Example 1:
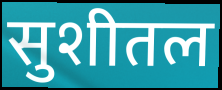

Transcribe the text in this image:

सुशीतल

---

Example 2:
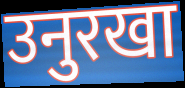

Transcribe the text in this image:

उनुरखा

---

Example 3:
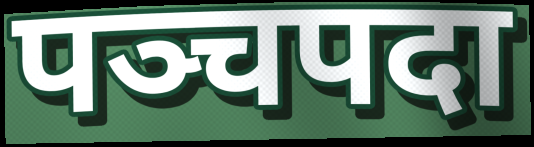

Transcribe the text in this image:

पञ्चपदा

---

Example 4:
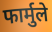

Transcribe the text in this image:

फार्मुले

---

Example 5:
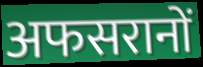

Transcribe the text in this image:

अफसरानों